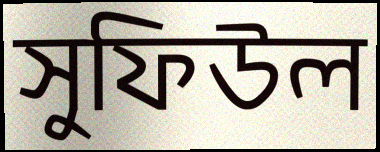
সুফিউল